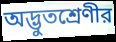
অদ্ভুতশ্রেণীর